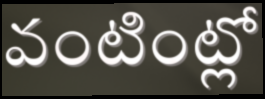
వంటింట్లో